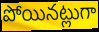
పోయినట్లుగా